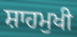
ਸ਼ਾਹਮੁਖੀ